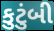
કુટુંબી